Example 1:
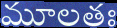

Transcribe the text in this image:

మూలతః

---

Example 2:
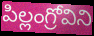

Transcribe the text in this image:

పిల్లంగ్రోవిని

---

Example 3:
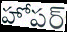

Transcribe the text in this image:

హోపర్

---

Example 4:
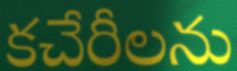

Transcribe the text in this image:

కచేరీలను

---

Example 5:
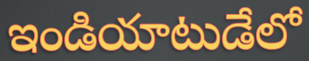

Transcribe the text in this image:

ఇండియాటుడేలో